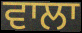
ਵਾਲਾ